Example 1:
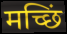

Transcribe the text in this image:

मच्छिं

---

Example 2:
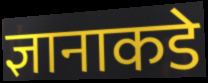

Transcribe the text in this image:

ज्ञानाकडे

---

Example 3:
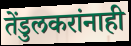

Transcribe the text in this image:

तेंडुलकरांनाही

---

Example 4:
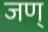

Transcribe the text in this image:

जण्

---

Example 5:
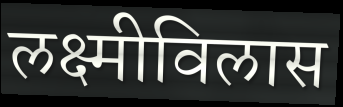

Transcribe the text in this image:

लक्ष्मीविलास